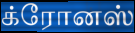
க்ரோனஸ்